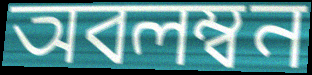
অবলম্বন